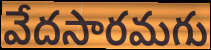
వేదసారమగు